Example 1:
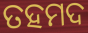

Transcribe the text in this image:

ତହମଦ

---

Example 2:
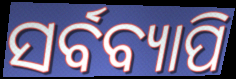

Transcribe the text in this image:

ସର୍ବବ୍ୟାପି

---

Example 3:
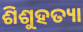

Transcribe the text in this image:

ଶିଶୁହତ୍ୟା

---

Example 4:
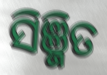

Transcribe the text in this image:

ସିଞ୍ଜିତ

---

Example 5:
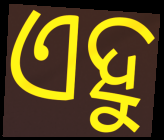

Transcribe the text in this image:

ଏହୁ